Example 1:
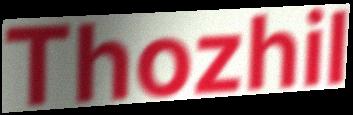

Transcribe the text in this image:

Thozhil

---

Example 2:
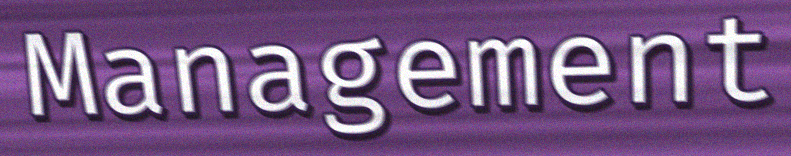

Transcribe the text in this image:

Management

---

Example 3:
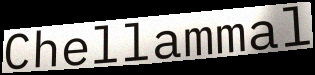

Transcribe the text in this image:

Chellammal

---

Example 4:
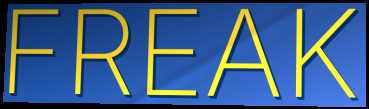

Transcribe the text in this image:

FREAK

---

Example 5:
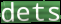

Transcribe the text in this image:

dets